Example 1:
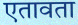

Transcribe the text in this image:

एतावता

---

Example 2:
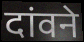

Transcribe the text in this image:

दांवने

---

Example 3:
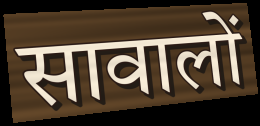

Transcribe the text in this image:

सावालों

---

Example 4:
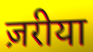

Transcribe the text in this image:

ज़रीया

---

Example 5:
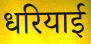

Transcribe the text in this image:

धरियाई